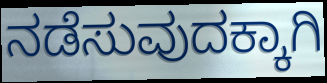
ನಡೆಸುವುದಕ್ಕಾಗಿ